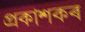
প্ৰকাশকৰ